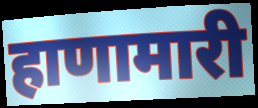
हाणामारी